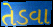
તેડવા